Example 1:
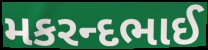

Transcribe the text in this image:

મકરન્દભાઈ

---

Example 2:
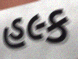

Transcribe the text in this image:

હલ્ક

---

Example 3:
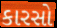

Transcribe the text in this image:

કારસો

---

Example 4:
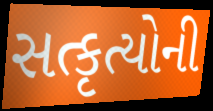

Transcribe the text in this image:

સત્કૃત્યોની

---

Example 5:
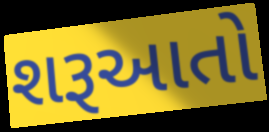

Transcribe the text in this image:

શરૂઆતો